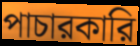
পাচারকারি